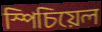
স্পিচিয়েল